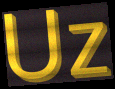
Uz